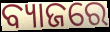
ବ୍ୟାଜରେ